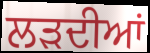
ਲੜਦੀਆਂ